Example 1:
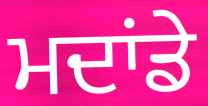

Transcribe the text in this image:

ਮਦਾਂਡੇ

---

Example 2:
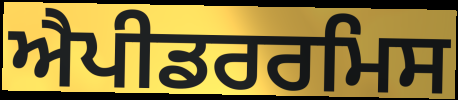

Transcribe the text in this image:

ਐਪੀਡਰਰਮਿਸ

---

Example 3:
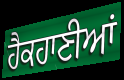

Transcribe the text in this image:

ਹੈਕਹਾਣੀਆਂ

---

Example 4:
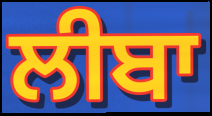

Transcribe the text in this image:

ਲੀਬਾ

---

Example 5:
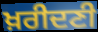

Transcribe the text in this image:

ਖ਼ਰੀਦਣੀ